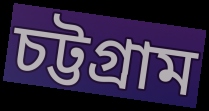
চট্টগ্ৰাম